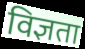
विज्ञता